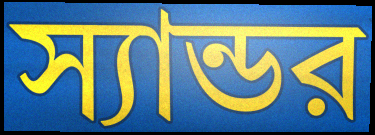
স্যান্ডর